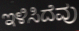
ಇಳಿಸಿದೆವು